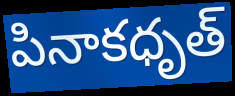
పినాకధృత్